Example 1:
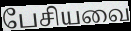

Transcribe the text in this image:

பேசியவை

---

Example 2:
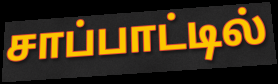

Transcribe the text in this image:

சாப்பாட்டில்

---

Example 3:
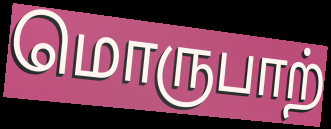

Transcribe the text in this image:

மொருபாற்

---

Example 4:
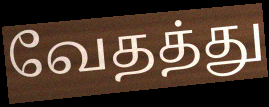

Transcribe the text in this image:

வேதத்து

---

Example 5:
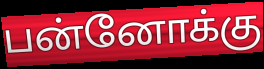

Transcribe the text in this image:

பன்னோக்கு